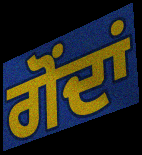
ਗੋਂਦਾਂ